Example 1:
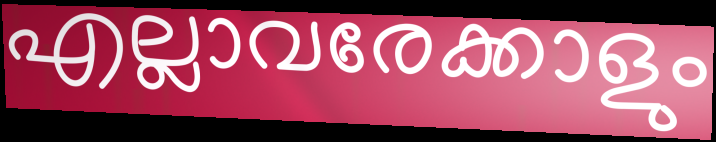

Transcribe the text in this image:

എല്ലാവരേക്കാളും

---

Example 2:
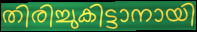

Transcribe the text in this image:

തിരിച്ചുകിട്ടാനായി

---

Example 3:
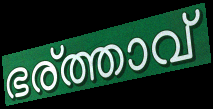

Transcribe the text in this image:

ഭര്ത്താവ്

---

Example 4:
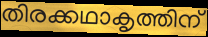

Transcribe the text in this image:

തിരക്കഥാകൃത്തിന്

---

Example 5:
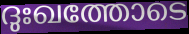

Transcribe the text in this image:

ദുഃഖത്തോടെ